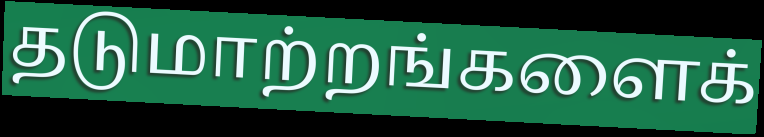
தடுமாற்றங்களைக்